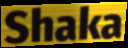
Shaka